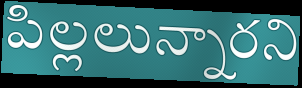
పిల్లలున్నారని